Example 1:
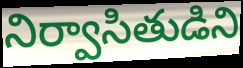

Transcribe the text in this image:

నిర్వాసితుడిని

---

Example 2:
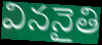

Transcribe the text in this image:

విననైతి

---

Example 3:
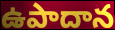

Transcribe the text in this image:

ఉపాదాన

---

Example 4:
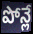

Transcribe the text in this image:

పోన్లే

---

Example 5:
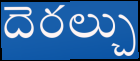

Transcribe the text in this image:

దెరల్చు